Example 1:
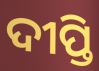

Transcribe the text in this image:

ଦୀପ୍ତି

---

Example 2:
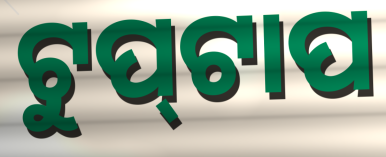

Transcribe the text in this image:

ଟୁପ୍‌ଟାପ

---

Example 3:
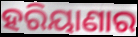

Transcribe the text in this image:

ହରିୟାଣାର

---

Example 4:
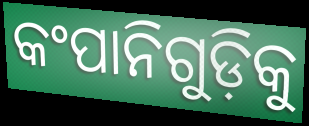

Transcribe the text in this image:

କଂପାନିଗୁଡ଼ିକୁ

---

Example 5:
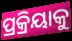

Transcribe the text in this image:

ପ୍ରକ୍ରିୟାକୁ